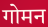
गोमन